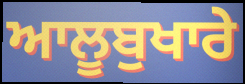
ਆਲੂਬੁਖਾਰੇ